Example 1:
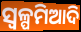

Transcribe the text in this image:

ସ୍ବଳ୍ପମିଆଦି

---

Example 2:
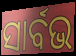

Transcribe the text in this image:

ସାର୍ବଭ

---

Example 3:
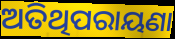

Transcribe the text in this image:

ଅତିଥିପରାୟଣା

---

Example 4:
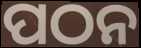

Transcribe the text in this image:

ପଠନ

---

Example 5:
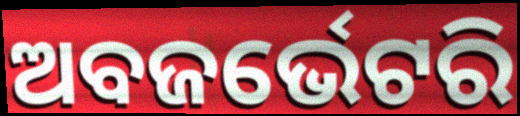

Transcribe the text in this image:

ଅବଜର୍ଭେଟରି